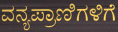
ವನ್ಯಪ್ರಾಣಿಗಳಿಗೆ